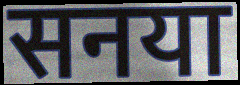
सनया